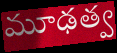
మూఢత్వ